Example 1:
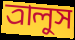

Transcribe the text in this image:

ত্রালুস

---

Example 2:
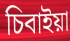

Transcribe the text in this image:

চিবাইয়া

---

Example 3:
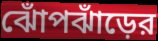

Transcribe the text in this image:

ঝোঁপঝাঁড়ের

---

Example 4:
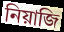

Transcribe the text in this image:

নিয়াজি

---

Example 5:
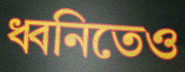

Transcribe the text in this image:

ধ্বনিতেও